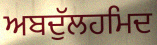
ਅਬਦੁੱਲਹਮਿਦ